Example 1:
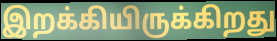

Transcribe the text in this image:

இறக்கியிருக்கிறது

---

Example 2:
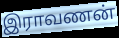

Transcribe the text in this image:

இராவணன்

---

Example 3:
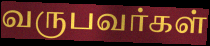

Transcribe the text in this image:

வருபவர்கள்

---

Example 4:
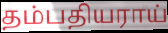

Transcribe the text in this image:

தம்பதியராய்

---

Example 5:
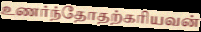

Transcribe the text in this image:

உணர்ந்தோதற்கரியவன்